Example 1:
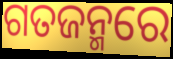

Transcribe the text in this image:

ଗତଜନ୍ମରେ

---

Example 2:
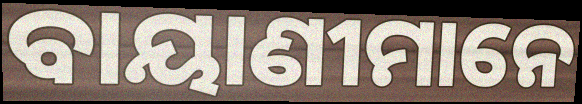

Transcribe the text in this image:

ବାୟାଣୀମାନେ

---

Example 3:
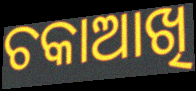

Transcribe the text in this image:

ଚକାଆଖି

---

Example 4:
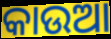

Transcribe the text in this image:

କାଉଆ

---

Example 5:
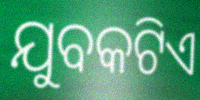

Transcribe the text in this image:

ଯୁବକଟିଏ